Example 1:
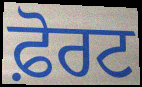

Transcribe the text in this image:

ਫ਼ੋਰਟ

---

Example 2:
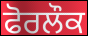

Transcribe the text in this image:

ਫੋਰਲੌਕ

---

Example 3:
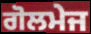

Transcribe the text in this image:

ਗੋਲਮੇਜ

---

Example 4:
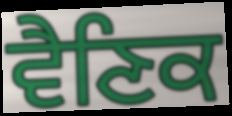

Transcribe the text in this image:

ਵੈਣਿਕ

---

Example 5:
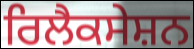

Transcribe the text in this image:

ਰਿਲੈਕਸੇਸ਼ਨ